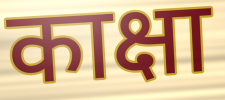
काक्षा